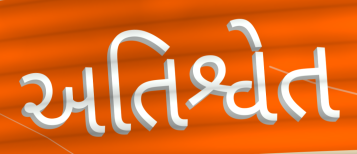
અતિશ્વેત